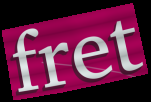
fret